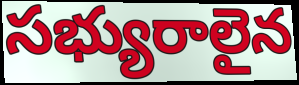
సభ్యురాలైన